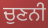
ਚੁਣਨੀ